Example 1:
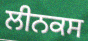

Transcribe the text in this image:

ਲੀਨਕਸ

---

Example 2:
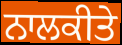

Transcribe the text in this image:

ਨਾਲਕੀਤੇ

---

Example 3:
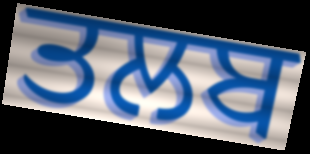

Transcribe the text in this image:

ਤਲਬ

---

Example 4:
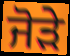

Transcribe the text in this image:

ਜੋੜੇ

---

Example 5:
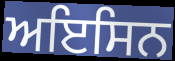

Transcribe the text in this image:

ਅਇਸਿਨ